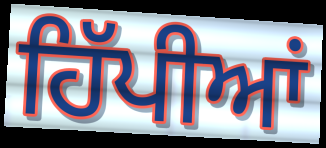
ਹਿੱਪੀਆਂ